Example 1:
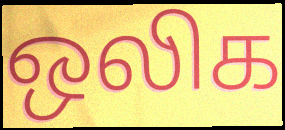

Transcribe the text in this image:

ஒலிக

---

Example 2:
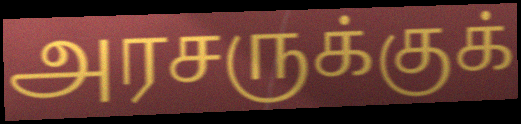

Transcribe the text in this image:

அரசருக்குக்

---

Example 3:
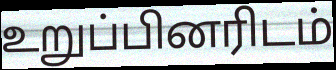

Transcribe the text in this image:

உறுப்பினரிடம்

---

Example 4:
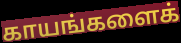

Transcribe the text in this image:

காயங்களைக்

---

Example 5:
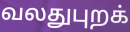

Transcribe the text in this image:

வலதுபுறக்